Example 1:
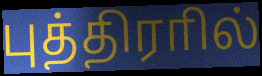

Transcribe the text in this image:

புத்திரரில்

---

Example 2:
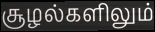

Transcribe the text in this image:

சூழல்களிலும்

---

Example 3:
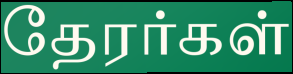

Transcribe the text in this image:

தேரர்கள்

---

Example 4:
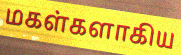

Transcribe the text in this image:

மகள்களாகிய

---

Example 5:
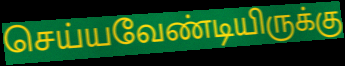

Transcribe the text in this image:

செய்யவேண்டியிருக்கு